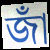
জাঁ